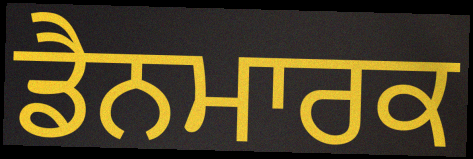
ਡੈਨਮਾਰਕ